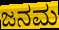
ಜನಮ